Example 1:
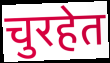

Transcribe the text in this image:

चुरहेत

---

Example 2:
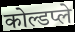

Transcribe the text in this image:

कोल्डप्ले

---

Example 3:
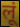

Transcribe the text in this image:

लूं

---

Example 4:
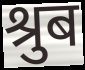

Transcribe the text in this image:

श्रुब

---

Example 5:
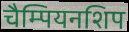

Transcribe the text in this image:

चैम्पियनशिप